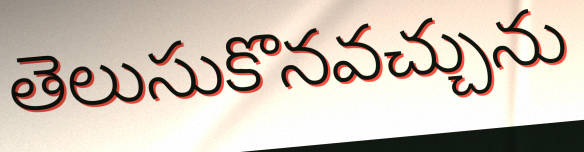
తెలుసుకొనవచ్చును